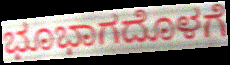
ಭೂಭಾಗದೊಳಗೆ